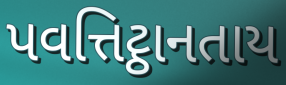
પવત્તિટ્ઠાનતાય